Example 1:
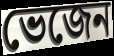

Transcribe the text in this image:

ভেজেন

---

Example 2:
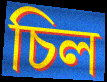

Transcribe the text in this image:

চিল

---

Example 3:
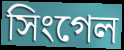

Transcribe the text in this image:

সিংগেল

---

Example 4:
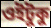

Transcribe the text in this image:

ওইটুকু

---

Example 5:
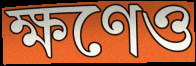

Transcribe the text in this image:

ক্ষণেও